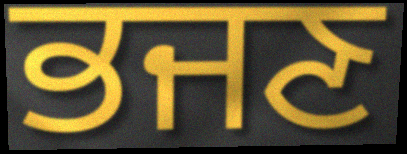
ਭਜਣ